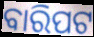
ବାରିପଟ